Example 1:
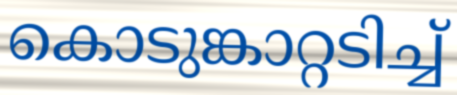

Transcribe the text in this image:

കൊടുങ്കാറ്റടിച്ച്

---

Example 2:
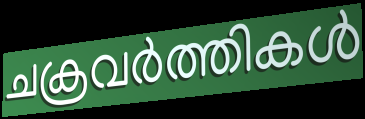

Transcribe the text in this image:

ചക്രവർത്തികൾ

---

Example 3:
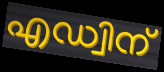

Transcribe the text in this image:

എഡ്വിന്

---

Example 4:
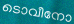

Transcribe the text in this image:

ടൊവീനോ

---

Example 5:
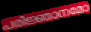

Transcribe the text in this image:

പരിജ്ഞാനമോ